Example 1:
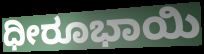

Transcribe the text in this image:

ಧೀರೂಭಾಯಿ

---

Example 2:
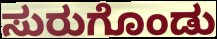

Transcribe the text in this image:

ಸುರುಗೊಂಡು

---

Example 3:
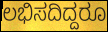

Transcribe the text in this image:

ಲಭಿಸದಿದ್ದರೂ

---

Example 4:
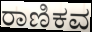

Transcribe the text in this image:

ರಾಣಿಕವ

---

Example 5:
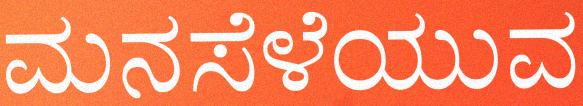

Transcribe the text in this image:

ಮನಸೆಳೆಯುವ